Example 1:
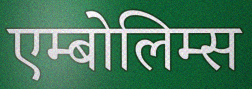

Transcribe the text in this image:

एम्बोलिम्स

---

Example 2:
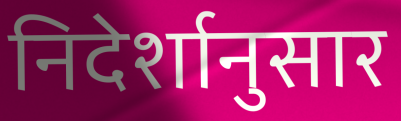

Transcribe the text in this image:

निदेर्शानुसार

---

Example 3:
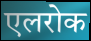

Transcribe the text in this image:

एलरोक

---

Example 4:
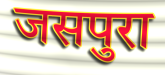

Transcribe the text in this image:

जसपुरा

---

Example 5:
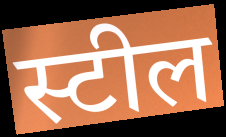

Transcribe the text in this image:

स्‍टील